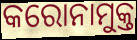
କରୋନାମୁକ୍ତ